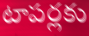
టాపర్లకు